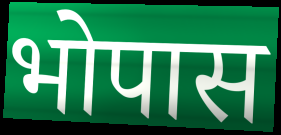
भोपास